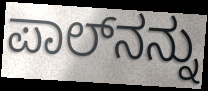
ಪಾಲ್‍ನನ್ನು